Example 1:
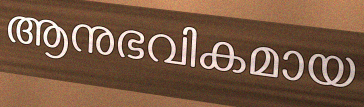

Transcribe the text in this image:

ആനുഭവികമായ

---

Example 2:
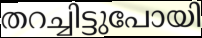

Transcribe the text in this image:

തറച്ചിട്ടുപോയി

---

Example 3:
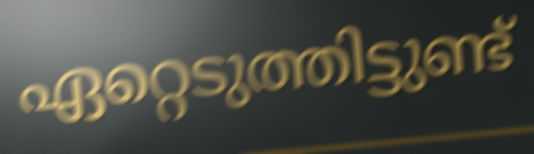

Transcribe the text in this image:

ഏറ്റെടുത്തിട്ടുണ്ട്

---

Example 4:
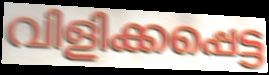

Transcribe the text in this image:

വിളിക്കപ്പെട്ട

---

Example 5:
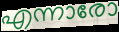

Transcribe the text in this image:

എന്നാരോ